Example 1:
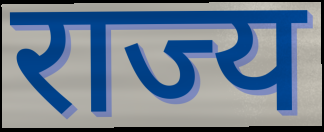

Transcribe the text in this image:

राज्य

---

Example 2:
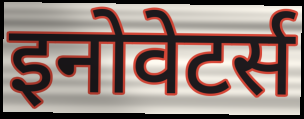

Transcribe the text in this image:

इनोवेटर्स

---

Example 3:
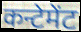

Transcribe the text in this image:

कन्टेमेंट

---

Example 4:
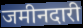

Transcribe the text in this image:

जमीनदारी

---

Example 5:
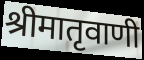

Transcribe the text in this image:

श्रीमातृवाणी